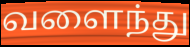
வளைந்து